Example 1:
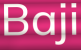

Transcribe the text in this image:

Baji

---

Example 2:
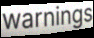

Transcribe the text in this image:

warnings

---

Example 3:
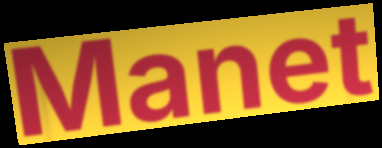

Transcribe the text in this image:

Manet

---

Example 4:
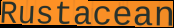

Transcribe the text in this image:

Rustacean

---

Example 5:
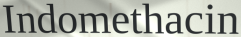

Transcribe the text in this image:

Indomethacin